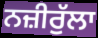
ਨਜ਼ੀਰੁੱਲਾ